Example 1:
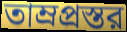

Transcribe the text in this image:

তাম্রপ্রস্তর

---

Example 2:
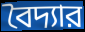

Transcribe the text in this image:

বৈদ্যার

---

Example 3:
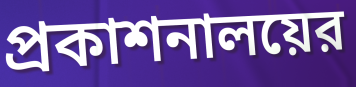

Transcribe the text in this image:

প্রকাশনালয়ের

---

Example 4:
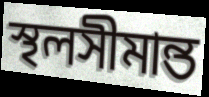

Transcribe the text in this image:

স্থলসীমান্ত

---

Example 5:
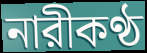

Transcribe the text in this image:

নারীকণ্ঠ